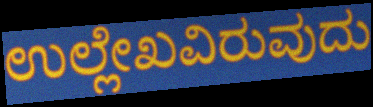
ಉಲ್ಲೇಖವಿರುವುದು